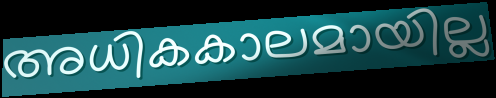
അധികകാലമായില്ല